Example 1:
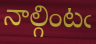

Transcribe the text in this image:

నాల్గింటఁ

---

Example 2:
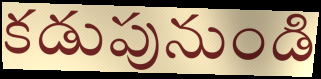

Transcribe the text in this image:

కడుపునుండి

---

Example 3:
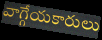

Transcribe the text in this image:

వాగ్గేయకారులు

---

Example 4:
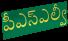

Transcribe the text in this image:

పీఎస్ఎల్వీ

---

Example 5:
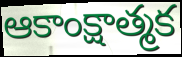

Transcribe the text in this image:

ఆకాంక్షాత్మక